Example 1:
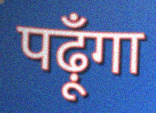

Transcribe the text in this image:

पढ़ूँगा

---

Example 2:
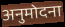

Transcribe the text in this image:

अनुमोदना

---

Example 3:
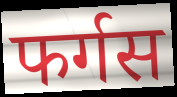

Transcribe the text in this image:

फर्गस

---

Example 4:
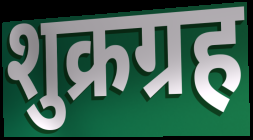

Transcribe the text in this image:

शुक्रग्रह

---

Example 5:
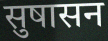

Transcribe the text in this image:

सुषासन